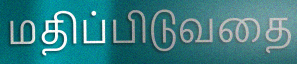
மதிப்பிடுவதை